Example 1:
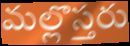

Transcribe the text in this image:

మల్లొస్తరు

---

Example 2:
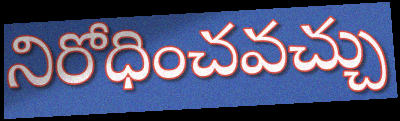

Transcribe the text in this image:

నిరోధించవచ్చు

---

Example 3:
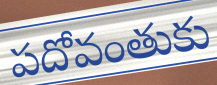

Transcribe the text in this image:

పదోవంతుకు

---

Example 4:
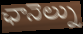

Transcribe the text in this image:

ఛానెల్ను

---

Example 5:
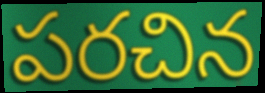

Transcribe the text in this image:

పరచిన